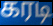
கரடி